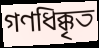
গণধিক্কৃত